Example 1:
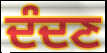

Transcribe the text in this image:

ਦੰਦਣ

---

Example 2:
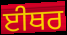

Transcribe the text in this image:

ਈਥਰ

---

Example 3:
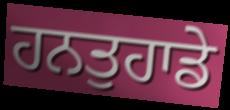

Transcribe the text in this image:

ਹਨਤੁਹਾਡੇ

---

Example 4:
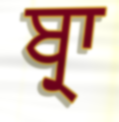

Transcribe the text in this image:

ਬ੍ਰਾ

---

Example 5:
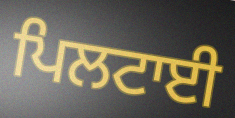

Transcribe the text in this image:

ਪਿਲਟਾਈ